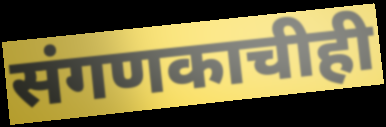
संगणकाचीही